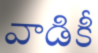
వాడికీ